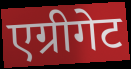
एग्रीगेट